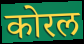
कोरल